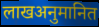
लाखअनुमानित